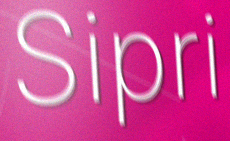
Sipri